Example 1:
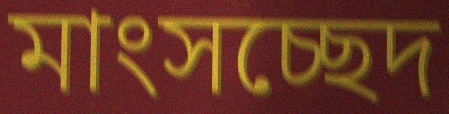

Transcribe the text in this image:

মাংসচ্ছেদ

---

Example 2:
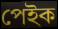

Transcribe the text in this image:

পেইক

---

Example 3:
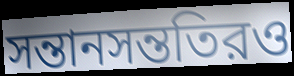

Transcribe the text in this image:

সন্তানসন্ততিরও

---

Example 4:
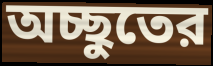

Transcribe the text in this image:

অচ্ছুতের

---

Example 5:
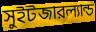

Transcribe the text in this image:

সুইটজারল্যান্ড